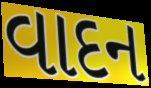
વાદન